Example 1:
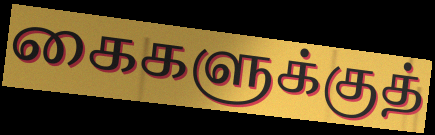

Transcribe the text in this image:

கைகளுக்குத்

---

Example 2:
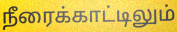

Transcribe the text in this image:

நீரைக்காட்டிலும்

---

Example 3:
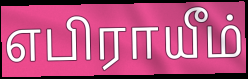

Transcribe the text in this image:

எபிராயீம்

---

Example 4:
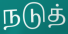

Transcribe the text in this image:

நடுத்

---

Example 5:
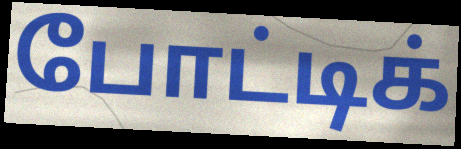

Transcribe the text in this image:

போட்டிக்